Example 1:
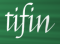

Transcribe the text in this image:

tifin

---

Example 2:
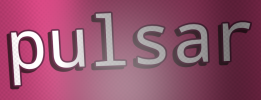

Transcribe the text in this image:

pulsar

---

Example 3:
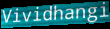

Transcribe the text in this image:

Vividhangi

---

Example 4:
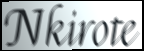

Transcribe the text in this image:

Nkirote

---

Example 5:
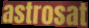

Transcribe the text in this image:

astrosat